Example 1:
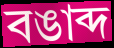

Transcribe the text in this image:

বঙাব্দ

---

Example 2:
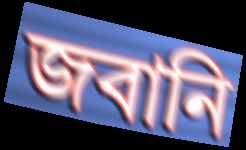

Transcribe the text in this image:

জবানি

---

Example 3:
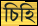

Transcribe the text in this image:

চিহি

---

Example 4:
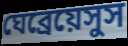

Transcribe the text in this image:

ঘেব্রেয়েসুস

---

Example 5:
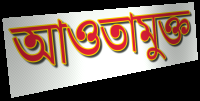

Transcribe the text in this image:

আওতামুক্ত